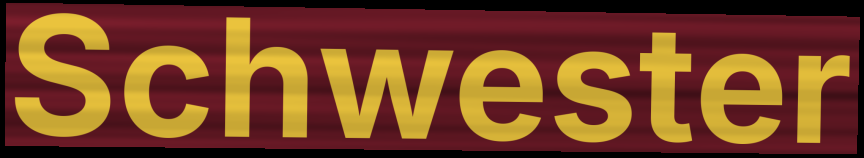
Schwester